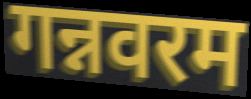
गन्नवरम